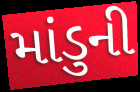
માંડુની